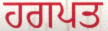
ਹਗਪਤ